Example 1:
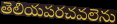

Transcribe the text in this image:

తెలియపరచవలెను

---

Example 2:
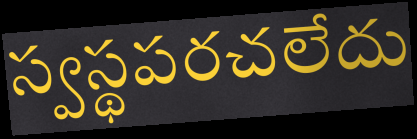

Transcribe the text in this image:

స్వస్థపరచలేదు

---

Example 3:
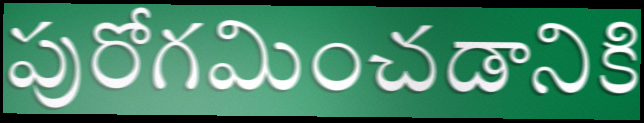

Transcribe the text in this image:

పురోగమించడానికి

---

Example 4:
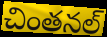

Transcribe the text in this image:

చింతనల్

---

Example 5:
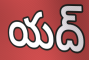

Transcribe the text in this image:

యద్